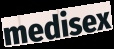
medisex